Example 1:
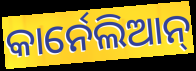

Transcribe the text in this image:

କାର୍ନେଲିଆନ୍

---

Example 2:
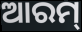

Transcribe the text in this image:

ଆରମ୍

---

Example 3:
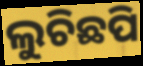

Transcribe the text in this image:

ଲୁଚିଛପି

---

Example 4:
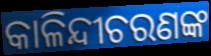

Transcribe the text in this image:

କାଳିନ୍ଦୀଚରଣଙ୍କ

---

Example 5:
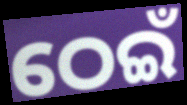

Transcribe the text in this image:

ଠେଇଁ